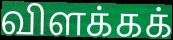
விளக்கக்